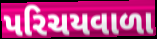
પરિચયવાળા